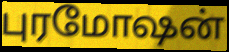
புரமோஷன்